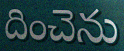
దించెను